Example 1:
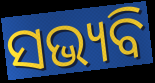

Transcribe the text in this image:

ସଭ୍ୟବି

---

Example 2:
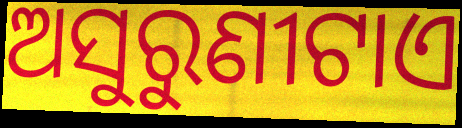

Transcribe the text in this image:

ଅସୁରୁଣୀଟାଏ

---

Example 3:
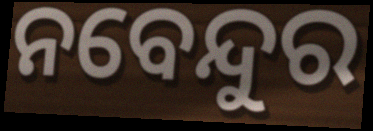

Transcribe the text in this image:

ନବେନ୍ଦୁର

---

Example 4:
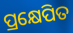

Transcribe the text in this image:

ପ୍ରକ୍ଷେପିତ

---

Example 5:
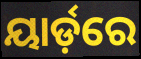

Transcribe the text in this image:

ୟାର୍ଡ଼ରେ